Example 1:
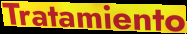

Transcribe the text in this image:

Tratamiento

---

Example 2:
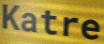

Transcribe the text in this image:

Katre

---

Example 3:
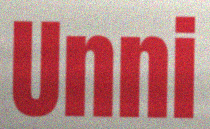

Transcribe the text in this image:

Unni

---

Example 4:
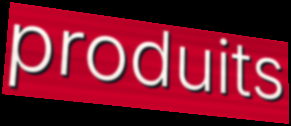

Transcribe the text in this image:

produits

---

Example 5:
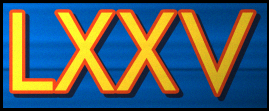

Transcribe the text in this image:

LXXV